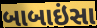
બાબાઇંસા